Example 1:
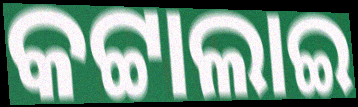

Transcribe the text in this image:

କଟ୍ଟାଲାଇ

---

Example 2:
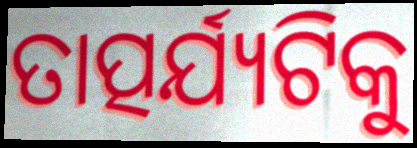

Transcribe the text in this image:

ତାତ୍ପର୍ଯ୍ୟଟିକୁ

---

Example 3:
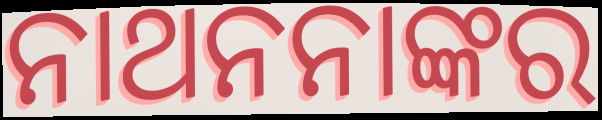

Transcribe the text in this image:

ନାଥନନାଙ୍କର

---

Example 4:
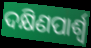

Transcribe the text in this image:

ଦକ୍ଷିଣପାର୍ଶ୍ବ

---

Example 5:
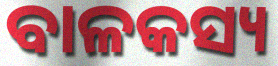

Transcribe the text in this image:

ବାଳକସ୍ୟ